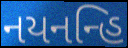
નયનન્હિ